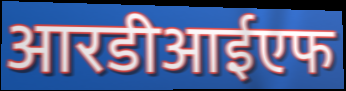
आरडीआईएफ